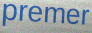
premer